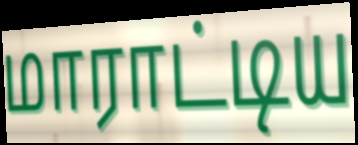
மாராட்டிய